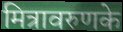
मित्रावरुणके